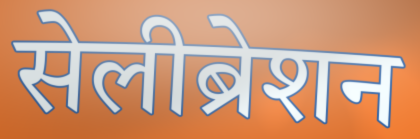
सेलीब्रेशन